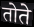
तोते